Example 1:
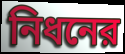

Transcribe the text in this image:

নিধনের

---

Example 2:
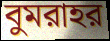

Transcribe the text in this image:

বুমরাহর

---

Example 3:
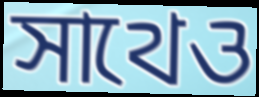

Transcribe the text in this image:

সাথেও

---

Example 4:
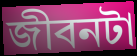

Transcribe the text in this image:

জীবনটা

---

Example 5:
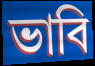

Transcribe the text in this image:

ভাবি